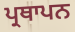
ਪ੍ਰਥਾਪਨ